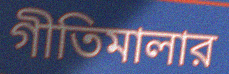
গীতিমালার